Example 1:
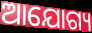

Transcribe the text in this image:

ଆଯୋଗ୍ୟ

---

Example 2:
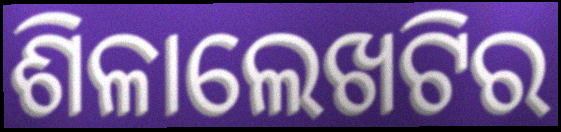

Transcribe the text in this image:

ଶିଳାଲେଖଟିର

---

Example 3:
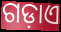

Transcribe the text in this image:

ଗଡ଼ାଏ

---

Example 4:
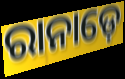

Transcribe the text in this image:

ରାନାଡ଼େ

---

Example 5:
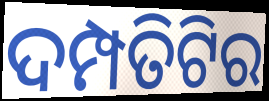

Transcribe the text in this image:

ଦମ୍ପତିଟିର